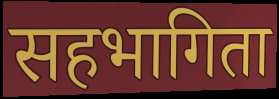
सहभागिता